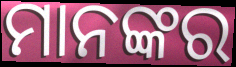
ମାନଙ୍କର